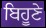
ਬਿਹੂਣੇ